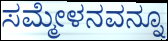
ಸಮ್ಮೇಳನವನ್ನೂ